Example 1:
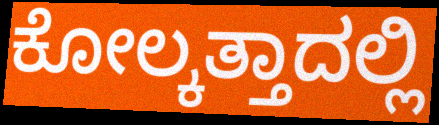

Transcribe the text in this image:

ಕೋಲ್ಕತ್ತಾದಲ್ಲಿ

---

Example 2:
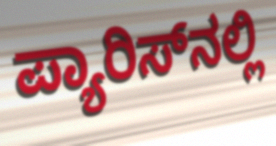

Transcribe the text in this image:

ಪ್ಯಾರಿಸ್‌ನಲ್ಲಿ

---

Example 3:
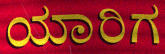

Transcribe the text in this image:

ಯಾರಿಗ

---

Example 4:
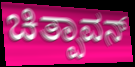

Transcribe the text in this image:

ಚಿತ್ಪಾವನ್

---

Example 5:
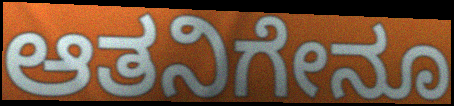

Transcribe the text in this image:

ಆತನಿಗೇನೂ